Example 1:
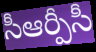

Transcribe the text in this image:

సీఆర్పీసీ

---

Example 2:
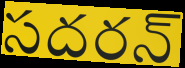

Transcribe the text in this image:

సదరన్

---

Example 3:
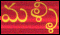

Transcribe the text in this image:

మళ్ళి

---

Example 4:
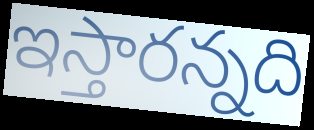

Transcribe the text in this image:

ఇస్తారన్నది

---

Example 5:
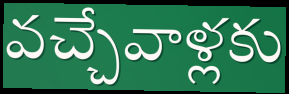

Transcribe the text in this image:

వచ్చేవాళ్లకు